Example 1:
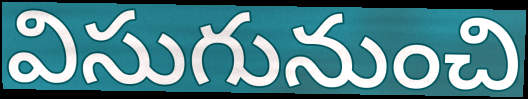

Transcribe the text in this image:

విసుగునుంచి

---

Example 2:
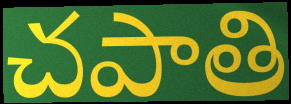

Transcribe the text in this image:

చపాతి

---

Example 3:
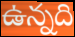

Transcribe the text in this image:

ఉన్నది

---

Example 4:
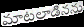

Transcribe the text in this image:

మాటలాడినను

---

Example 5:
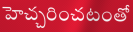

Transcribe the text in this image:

హెచ్చరించటంతో